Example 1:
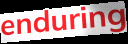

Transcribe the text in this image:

enduring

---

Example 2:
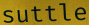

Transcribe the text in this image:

suttle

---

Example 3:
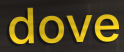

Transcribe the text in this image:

dove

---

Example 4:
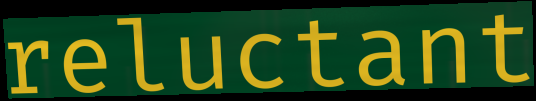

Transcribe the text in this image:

reluctant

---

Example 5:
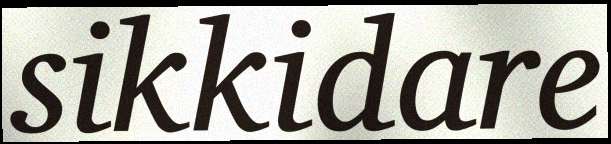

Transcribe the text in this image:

sikkidare